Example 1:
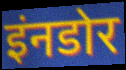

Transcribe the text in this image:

इंनडोर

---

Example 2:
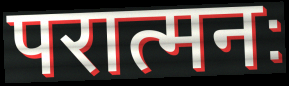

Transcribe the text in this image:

परात्मनः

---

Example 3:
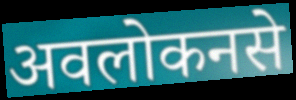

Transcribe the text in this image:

अवलोकनसे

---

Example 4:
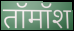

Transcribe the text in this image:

तॉमॉश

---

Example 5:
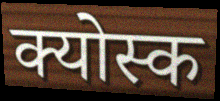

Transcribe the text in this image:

क्योस्क